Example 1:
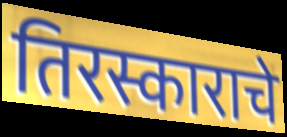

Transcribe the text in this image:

तिरस्काराचे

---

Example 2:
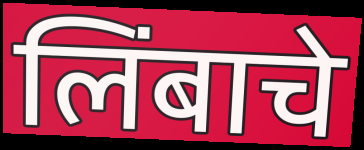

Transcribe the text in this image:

लिंबाचे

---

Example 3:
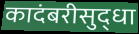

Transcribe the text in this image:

कादंबरीसुद्धा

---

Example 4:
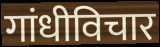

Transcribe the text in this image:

गांधीविचार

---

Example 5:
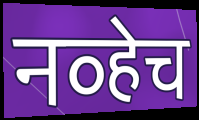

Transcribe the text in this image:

नव्हेच